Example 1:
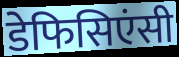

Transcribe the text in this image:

डेफिसिएंसी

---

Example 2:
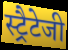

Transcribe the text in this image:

स्ट्रैटेजी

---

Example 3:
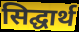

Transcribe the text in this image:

सिद्घार्थ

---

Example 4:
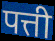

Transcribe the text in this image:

पत्ती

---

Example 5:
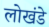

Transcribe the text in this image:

लोखंडे